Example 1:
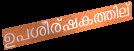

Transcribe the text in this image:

ഉപശീര്ഷകത്തില്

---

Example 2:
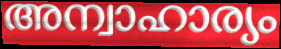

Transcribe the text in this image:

അന്വാഹാര്യം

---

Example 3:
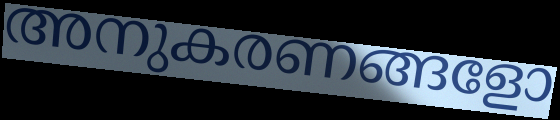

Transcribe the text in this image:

അനുകരണങ്ങളോ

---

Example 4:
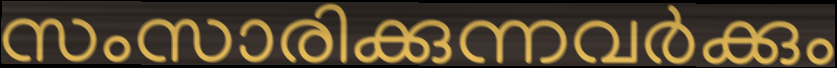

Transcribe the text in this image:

സംസാരിക്കുന്നവർക്കും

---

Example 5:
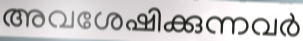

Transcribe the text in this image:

അവശേഷിക്കുന്നവർ